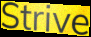
Strive